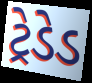
ટ્રેડેડ